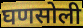
घणसोली